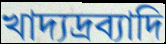
খাদ্যদ্রব্যাদি